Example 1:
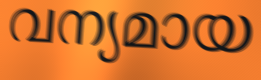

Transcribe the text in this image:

വന്യമായ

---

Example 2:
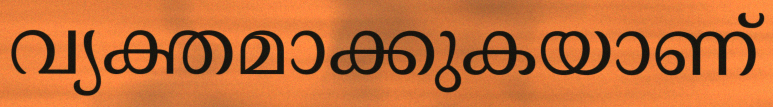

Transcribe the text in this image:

വ്യക്തമാക്കുകയാണ്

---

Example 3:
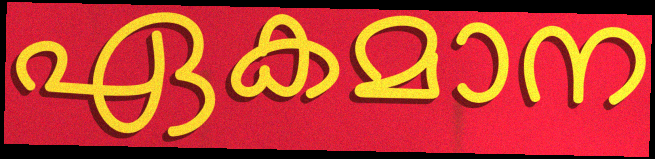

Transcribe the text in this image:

ഏകമാന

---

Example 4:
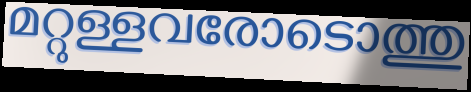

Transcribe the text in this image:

മറ്റുള്ളവരോടൊത്തു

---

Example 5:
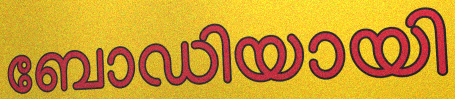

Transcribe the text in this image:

ബോഡിയായി